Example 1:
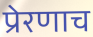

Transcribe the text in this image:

प्रेरणाच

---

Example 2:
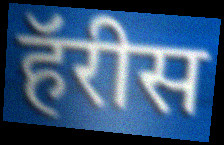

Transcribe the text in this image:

हॅरीस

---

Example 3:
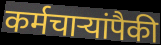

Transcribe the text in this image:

कर्मचार्‍यांपैकी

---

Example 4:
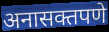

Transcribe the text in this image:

अनासक्तपणे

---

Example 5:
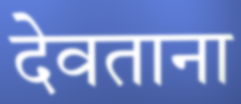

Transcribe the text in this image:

देवताना